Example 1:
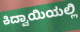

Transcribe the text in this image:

ಕಿದ್ವಾಯಿಯಲ್ಲಿ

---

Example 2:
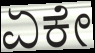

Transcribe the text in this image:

ಏಕೇ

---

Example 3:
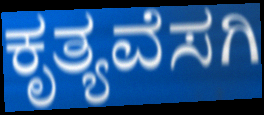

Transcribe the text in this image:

ಕೃತ್ಯವೆಸಗಿ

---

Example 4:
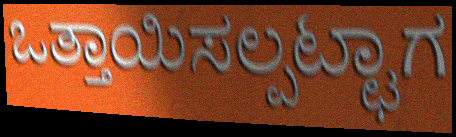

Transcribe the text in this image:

ಒತ್ತಾಯಿಸಲ್ಪಟ್ಟಾಗ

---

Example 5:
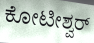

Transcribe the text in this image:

ಕೋಟೀಶ್ವರ್